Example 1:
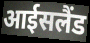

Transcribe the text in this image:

आईसलैंड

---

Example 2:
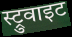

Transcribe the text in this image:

स्ट्रुवाइट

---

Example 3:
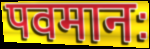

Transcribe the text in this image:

पवमानः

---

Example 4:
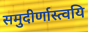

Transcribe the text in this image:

समुदीर्णास्त्वयि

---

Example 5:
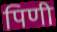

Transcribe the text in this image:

पिणी